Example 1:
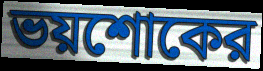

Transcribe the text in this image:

ভয়শোকের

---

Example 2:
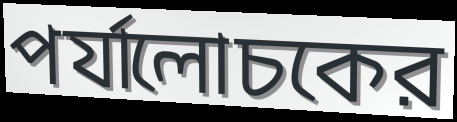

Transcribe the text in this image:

পর্যালোচকের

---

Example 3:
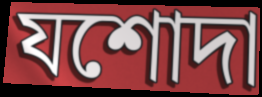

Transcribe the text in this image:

যশোদা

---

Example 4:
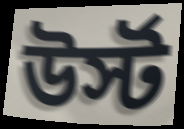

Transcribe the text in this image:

উর্স্ট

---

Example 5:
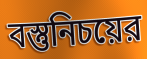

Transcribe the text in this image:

বস্তুনিচয়ের